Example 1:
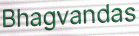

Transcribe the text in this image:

Bhagvandas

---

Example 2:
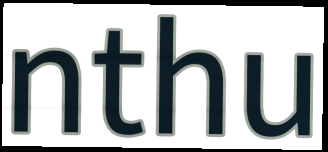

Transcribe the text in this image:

nthu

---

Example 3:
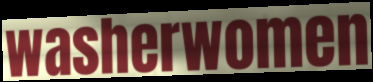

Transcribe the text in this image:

washerwomen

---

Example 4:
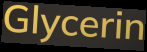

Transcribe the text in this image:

Glycerin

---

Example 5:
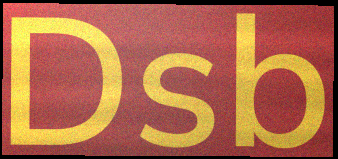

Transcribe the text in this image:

Dsb